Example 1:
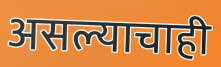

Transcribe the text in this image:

असल्याचाही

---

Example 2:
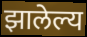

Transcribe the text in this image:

झालेल्य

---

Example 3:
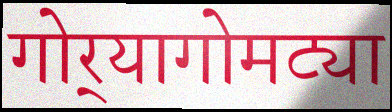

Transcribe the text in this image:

गोर्यागोमट्या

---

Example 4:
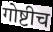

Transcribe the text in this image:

गोष्टीच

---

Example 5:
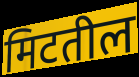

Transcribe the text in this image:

मिटतील